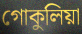
গোকুলিয়া